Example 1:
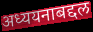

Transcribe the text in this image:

अध्ययनाबद्दल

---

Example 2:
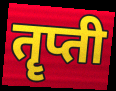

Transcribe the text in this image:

तॄप्ती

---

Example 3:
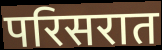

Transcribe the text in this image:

परिसरात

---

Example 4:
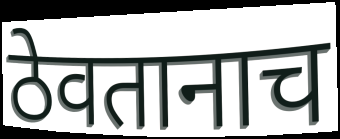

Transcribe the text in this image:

ठेवतानाच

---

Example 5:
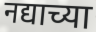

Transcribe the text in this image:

नद्याच्या